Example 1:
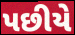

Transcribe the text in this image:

પછીયે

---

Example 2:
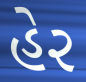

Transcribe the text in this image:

હેર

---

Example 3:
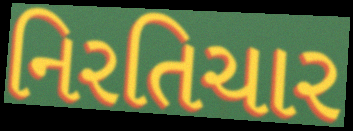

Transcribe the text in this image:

નિરતિચાર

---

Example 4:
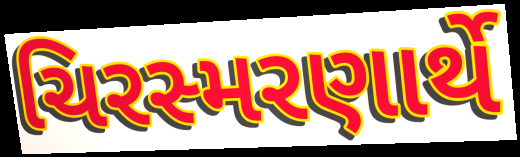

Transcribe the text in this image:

ચિરસ્મરણાર્થે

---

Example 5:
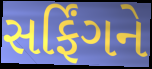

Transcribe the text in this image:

સર્ફિંગને